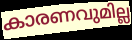
കാരണവുമില്ല